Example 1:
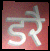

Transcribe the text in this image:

डरै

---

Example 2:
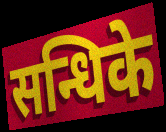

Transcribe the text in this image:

सन्धिके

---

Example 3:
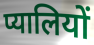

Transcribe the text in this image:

प्यालियों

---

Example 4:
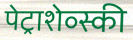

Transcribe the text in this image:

पेट्राशेव्स्की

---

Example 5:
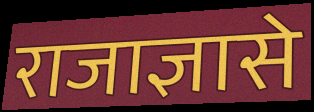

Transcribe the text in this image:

राजाज्ञासे